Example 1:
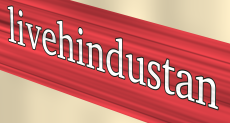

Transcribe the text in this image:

livehindustan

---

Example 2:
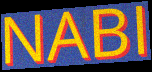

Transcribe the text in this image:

NABI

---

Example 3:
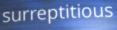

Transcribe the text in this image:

surreptitious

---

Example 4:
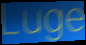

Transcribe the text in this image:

Luge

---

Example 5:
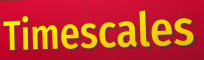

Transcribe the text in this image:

Timescales